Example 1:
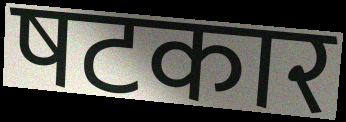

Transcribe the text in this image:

षटकार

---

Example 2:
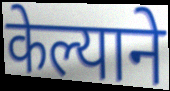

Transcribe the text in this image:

केल्याने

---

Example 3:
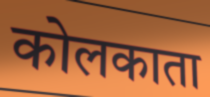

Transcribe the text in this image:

कोलकाता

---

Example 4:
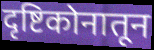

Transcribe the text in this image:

दृष्टिकोनातून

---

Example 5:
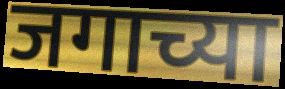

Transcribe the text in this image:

जगाच्या